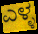
ಎಳ್ಳ